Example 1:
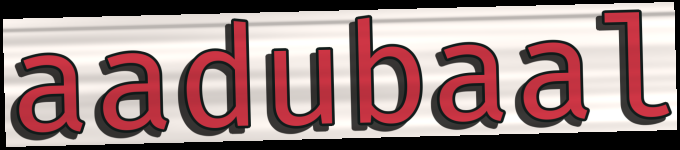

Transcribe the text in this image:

aadubaal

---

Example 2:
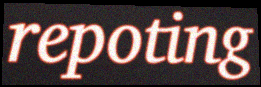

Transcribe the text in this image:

repoting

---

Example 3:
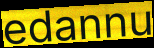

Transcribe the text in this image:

edannu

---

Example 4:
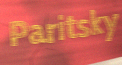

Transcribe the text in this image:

Paritsky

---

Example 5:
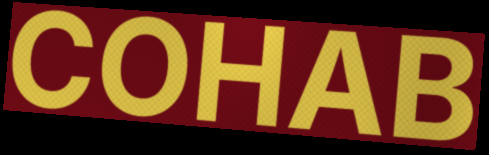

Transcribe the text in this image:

COHAB